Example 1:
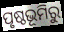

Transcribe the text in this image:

ପୃଷ୍ଠଭୂମିରୁ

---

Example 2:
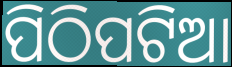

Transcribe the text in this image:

ପିଠିପଟିଆ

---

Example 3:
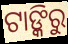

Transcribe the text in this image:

ଟାଙ୍କିରୁ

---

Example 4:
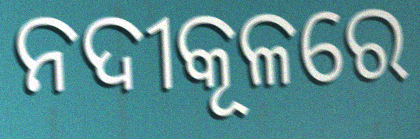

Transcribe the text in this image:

ନଦୀକୂଳରେ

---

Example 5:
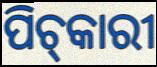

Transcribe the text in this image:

ପିଚ୍‌କାରୀ